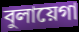
বুলায়েগা